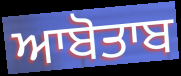
ਆਬੋਤਾਬ